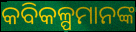
କବିକଳ୍ପମାନଙ୍କ